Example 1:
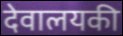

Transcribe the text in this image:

देवालयकी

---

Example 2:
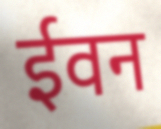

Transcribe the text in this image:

ईवन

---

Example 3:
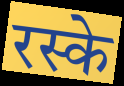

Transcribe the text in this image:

रस्के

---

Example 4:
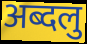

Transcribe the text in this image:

अब्दलु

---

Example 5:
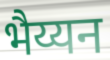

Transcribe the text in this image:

भैय्यन